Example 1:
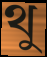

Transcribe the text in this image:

থু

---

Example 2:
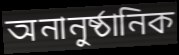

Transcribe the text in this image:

অনানুষ্ঠানিক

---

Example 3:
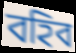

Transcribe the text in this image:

বহিব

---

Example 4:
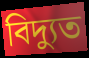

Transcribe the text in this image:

বিদ্যুত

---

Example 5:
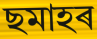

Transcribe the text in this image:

ছমাহৰ